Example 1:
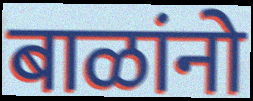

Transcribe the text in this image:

बाळांनो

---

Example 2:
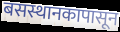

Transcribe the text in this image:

बसस्थानकापासून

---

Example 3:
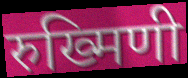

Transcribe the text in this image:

रुख्मिणी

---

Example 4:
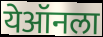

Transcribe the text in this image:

येऑनला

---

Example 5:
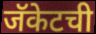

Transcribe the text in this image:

जॅकेटची